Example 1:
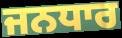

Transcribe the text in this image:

ਜਨਧਾਰ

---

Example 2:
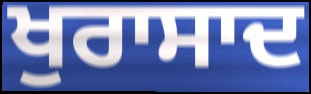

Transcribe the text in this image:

ਖੁਰਾਸਾਦ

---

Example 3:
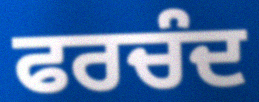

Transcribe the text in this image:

ਫਰਚੰਦ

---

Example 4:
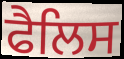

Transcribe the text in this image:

ਫੈਲਿਸ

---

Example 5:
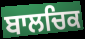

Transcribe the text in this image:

ਬਾਲਚਿਕ